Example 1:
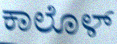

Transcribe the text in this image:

ಕಾಲೊಳ್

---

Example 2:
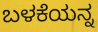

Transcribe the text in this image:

ಬಳಕೆಯನ್ನ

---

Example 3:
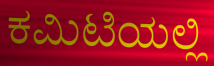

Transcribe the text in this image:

ಕಮಿಟಿಯಲ್ಲಿ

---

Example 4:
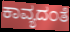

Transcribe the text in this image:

ಕಾವ್ಯದಂತೆ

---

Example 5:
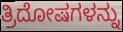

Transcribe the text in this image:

ತ್ರಿದೋಷಗಳನ್ನು